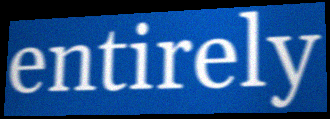
entirely